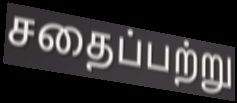
சதைப்பற்று